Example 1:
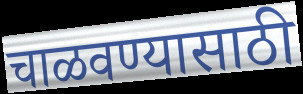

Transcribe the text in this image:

चाळवण्यासाठी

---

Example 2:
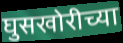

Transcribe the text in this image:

घुसखोरीच्या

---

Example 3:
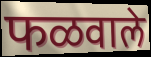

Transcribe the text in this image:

फळवाले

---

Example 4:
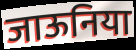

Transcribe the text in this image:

जाऊनिया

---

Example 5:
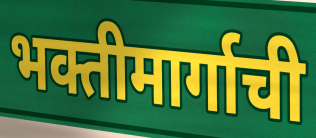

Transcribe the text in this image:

भक्तीमार्गाची